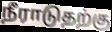
நீராடுதற்கு